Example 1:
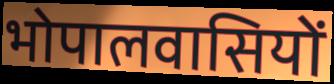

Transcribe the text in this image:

भोपालवासियों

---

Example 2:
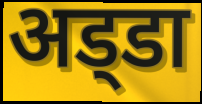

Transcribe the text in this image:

अड्‌डा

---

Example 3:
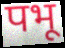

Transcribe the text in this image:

पभू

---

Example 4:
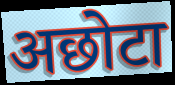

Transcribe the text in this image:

अछोटा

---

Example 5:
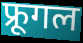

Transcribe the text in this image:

फ्रूगल